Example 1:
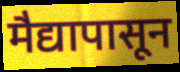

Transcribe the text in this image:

मैद्यापासून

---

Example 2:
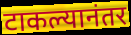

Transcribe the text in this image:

टाकल्यानंतर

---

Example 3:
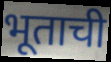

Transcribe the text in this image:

भूताची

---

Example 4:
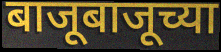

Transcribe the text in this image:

बाजूबाजूच्या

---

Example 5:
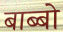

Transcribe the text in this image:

बाब्बो